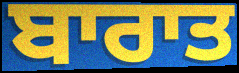
ਬਾਰਾਤ